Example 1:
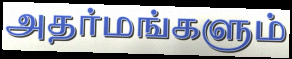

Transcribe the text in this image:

அதர்மங்களும்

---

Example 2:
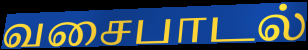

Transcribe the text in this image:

வசைபாடல்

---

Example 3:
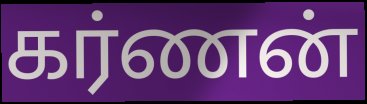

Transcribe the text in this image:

கர்ணன்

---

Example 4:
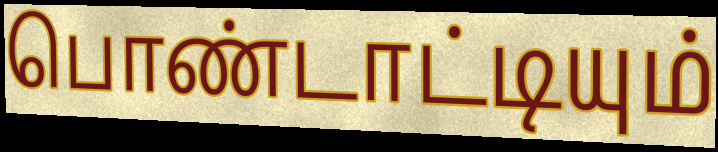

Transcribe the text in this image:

பொண்டாட்டியும்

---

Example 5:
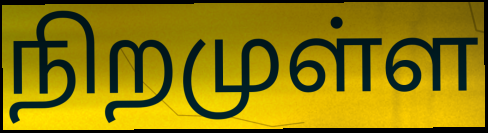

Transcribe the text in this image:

நிறமுள்ள